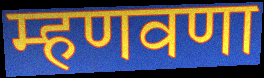
म्हणवणा